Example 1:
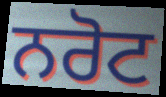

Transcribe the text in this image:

ਨਰੋਟ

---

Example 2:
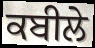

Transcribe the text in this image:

ਕਬੀਲੇ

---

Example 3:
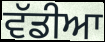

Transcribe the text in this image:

ਵੱਡੀਆ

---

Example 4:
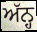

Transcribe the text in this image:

ਅੱਨ੍ਹ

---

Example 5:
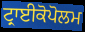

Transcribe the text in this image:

ਟ੍ਰਾਈਕੋਪੋਲਮ